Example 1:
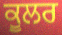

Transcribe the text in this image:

ਕੂਲਰ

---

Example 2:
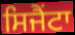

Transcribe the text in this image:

ਸਿਜੈਂਟਾ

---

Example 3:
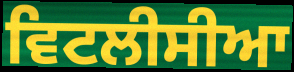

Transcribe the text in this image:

ਵਿਟਲੀਸੀਆ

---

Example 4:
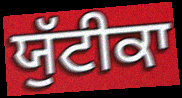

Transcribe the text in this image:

ਯੁੱਟੀਕਾ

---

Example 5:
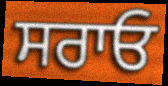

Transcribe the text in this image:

ਸਰਾਓ